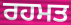
ਰਹਮਤ